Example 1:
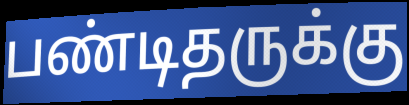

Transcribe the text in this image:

பண்டிதருக்கு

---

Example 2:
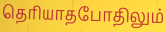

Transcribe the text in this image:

தெரியாதபோதிலும்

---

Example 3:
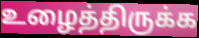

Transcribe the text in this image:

உழைத்திருக்க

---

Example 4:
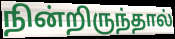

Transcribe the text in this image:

நின்றிருந்தால்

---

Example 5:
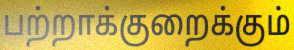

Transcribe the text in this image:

பற்றாக்குறைக்கும்